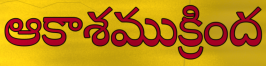
ఆకాశముక్రింద